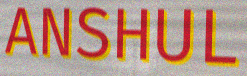
ANSHUL